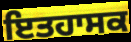
ਇਤਹਾਸਕ